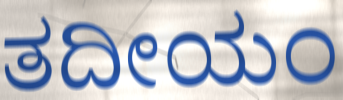
ತದೀಯಂ